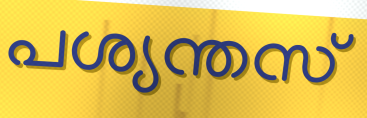
പശ്യന്തസ്